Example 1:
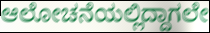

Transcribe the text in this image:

ಆಲೋಚನೆಯಲ್ಲಿದ್ದಾಗಲೇ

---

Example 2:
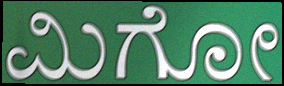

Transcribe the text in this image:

ಮಿಗೋ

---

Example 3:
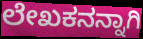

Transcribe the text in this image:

ಲೇಖಕನನ್ನಾಗಿ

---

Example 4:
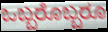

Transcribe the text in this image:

ಒಬ್ಬರೊಬ್ಬರೂ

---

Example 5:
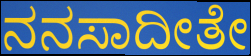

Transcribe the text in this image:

ನನಸಾದೀತೇ